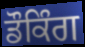
ਡੌਕਿੰਗ